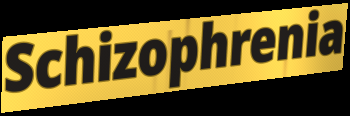
Schizophrenia